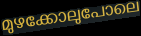
മുഴക്കോലുപോലെ